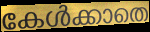
കേൾക്കാതെ